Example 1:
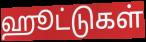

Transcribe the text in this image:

ஹூட்டுகள்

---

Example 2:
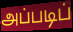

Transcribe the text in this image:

அப்படிப்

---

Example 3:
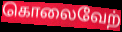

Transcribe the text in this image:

கொலைவேற்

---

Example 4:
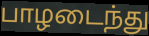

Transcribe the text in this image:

பாழடைந்து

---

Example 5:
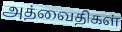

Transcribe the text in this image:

அத்வைதிகள்